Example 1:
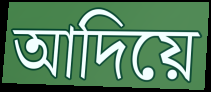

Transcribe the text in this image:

আদিয়ে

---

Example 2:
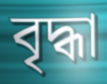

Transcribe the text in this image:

বৃদ্ধা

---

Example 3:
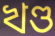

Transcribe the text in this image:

খণ্ড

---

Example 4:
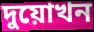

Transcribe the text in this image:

দুয়োখন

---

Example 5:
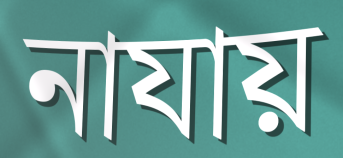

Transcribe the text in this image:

নাযায়